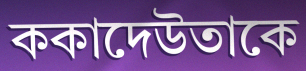
ককাদেউতাকে